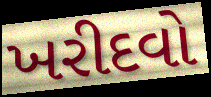
ખરીદવો